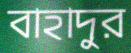
বাহাদুর